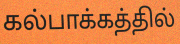
கல்பாக்கத்தில்